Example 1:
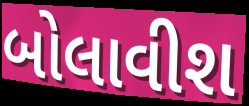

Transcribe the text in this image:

બોલાવીશ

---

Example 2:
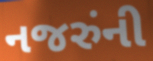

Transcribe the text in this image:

નજરુંની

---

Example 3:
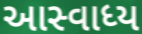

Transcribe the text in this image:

આસ્વાધ્ય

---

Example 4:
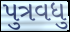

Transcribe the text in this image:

પુત્રવધુ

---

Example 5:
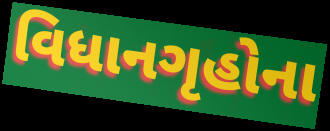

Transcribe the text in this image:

વિધાનગૃહોના